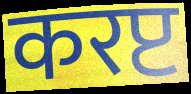
करप्ट